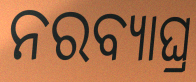
ନରବ୍ୟାଘ୍ର